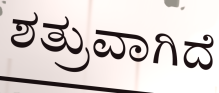
ಶತ್ರುವಾಗಿದೆ